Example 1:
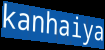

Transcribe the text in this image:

kanhaiya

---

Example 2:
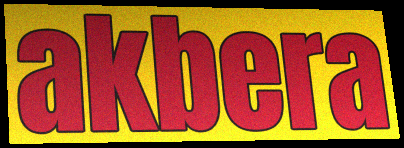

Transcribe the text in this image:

akbera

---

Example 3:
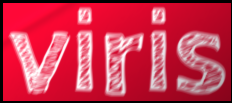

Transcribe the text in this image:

viris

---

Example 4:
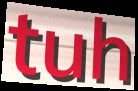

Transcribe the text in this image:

tuh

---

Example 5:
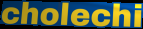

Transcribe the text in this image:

cholechi